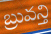
బ్రువన్తి